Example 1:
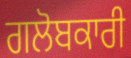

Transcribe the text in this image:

ਗਲੋਬਕਾਰੀ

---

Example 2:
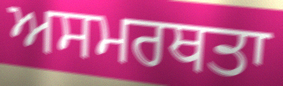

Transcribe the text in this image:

ਅਸਮਰਥਤਾ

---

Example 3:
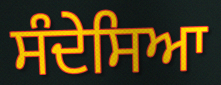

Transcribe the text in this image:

ਸੰਦੇਸਿਆ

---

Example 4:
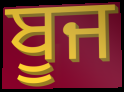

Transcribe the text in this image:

ਬੂਜ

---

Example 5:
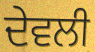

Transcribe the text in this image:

ਦੇਵਲੀ